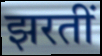
झरतीं